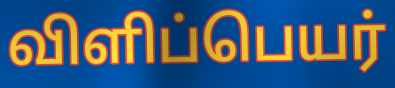
விளிப்பெயர்